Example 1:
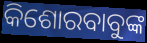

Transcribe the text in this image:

କିଶୋରବାବୁଙ୍କ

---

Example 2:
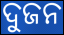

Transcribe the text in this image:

ଦୁଜନ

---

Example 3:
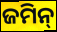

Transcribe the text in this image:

ଜମିନ୍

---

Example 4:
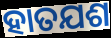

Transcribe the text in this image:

ହାତଯଶ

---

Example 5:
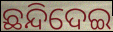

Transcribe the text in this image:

ଛନ୍ଦିଦେଇ